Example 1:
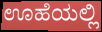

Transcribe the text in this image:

ಊಹೆಯಲ್ಲಿ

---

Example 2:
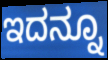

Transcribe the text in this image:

ಇದನ್ನೂ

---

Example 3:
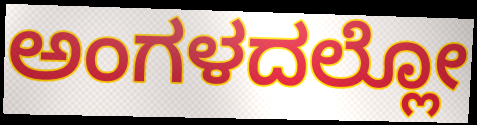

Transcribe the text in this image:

ಅಂಗಳದಲ್ಲೋ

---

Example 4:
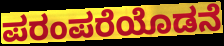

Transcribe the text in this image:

ಪರಂಪರೆಯೊಡನೆ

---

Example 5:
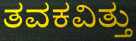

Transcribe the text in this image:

ತವಕವಿತ್ತು